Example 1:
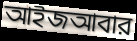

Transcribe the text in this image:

আইজআবার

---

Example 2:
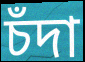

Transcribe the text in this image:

চঁদা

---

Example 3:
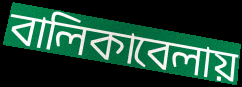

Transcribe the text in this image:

বালিকাবেলায়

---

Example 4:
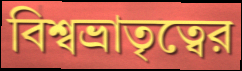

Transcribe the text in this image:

বিশ্বভ্রাতৃত্বের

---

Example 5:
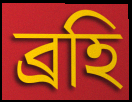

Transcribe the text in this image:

ব্রহি